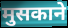
मुसकाने